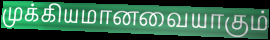
முக்கியமானவையாகும்